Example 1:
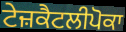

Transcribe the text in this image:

ਟੇਜ਼ਕੈਟਲੀਪੋਕਾ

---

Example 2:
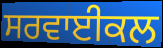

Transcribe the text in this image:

ਸਰਵਾਈਕਲ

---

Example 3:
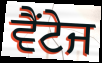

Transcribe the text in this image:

ਵੈਂਟੇਜ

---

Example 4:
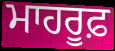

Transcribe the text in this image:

ਮਾਹਰੂਫ਼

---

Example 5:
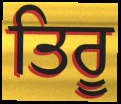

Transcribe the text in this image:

ਤਿਰੂ